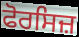
ਫੋਰਸਿਜ਼